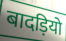
बादड़ियो